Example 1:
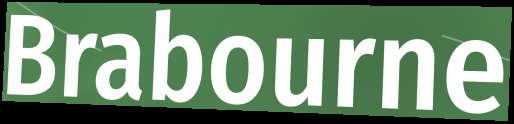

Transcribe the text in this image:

Brabourne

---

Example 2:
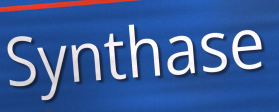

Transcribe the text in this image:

Synthase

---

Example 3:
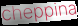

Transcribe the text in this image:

cheppina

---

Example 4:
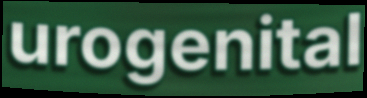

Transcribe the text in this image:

urogenital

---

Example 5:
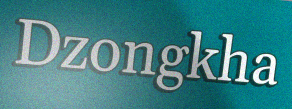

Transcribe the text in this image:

Dzongkha